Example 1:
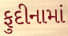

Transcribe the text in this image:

ફુદીનામાં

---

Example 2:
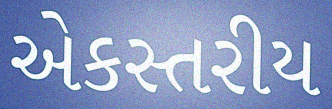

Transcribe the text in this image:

એકસ્તરીય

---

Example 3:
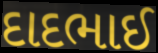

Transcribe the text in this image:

દાદભાઈ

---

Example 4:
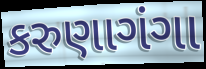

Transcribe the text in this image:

કરુણાગંગા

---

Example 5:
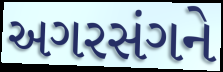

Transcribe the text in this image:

અગરસંગને